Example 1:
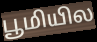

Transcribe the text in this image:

பூமியில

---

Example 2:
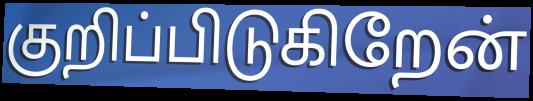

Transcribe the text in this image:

குறிப்பிடுகிறேன்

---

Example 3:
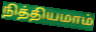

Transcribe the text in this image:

நித்தியமாம்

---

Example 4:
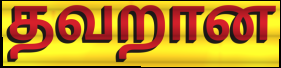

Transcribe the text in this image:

தவறான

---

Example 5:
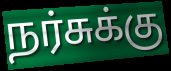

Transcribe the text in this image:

நர்சுக்கு